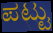
ಪಟ್ಟು